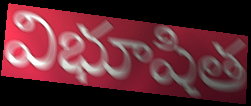
విభూషిత